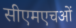
सीएमएचओं